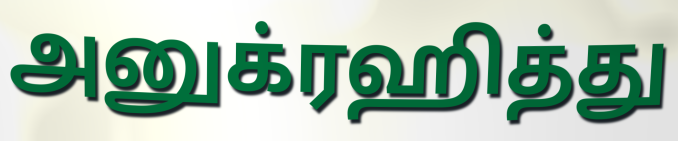
அனுக்ரஹித்து